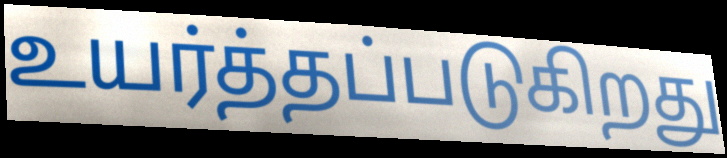
உயர்த்தப்படுகிறது